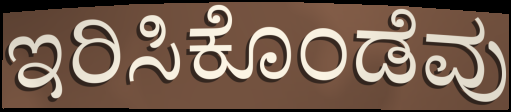
ಇರಿಸಿಕೊಂಡೆವು